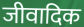
जीवादिक